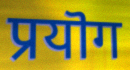
प्रयॊग